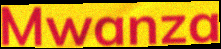
Mwanza